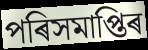
পৰিসমাপ্তিৰ